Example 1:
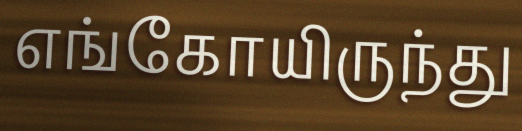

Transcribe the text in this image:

எங்கோயிருந்து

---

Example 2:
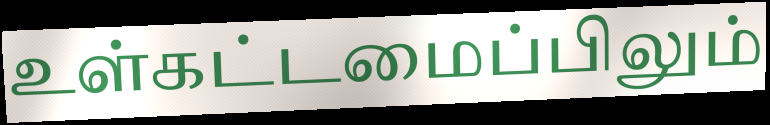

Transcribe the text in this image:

உள்கட்டமைப்பிலும்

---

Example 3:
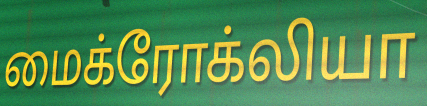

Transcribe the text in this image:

மைக்ரோக்லியா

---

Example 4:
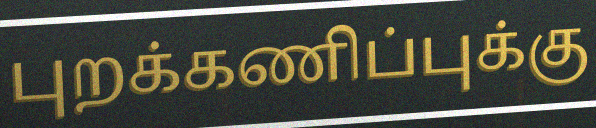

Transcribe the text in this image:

புறக்கணிப்புக்கு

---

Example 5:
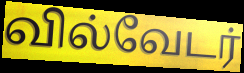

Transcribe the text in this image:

வில்வேடர்